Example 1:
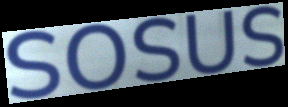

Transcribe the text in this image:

SOSUS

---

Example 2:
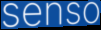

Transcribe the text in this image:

senso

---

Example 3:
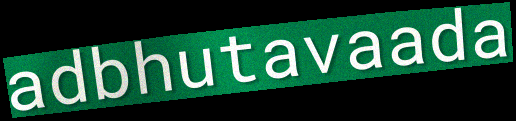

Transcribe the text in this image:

adbhutavaada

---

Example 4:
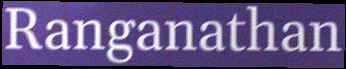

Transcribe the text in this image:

Ranganathan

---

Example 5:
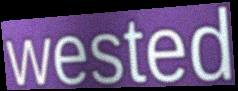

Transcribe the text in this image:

wested